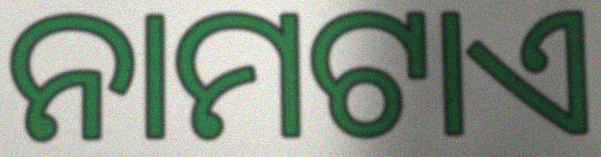
ନାମଟାଏ